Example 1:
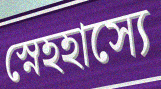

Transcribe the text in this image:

স্নেহহাস্যে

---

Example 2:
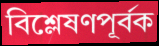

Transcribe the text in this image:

বিশ্লেষণপূর্বক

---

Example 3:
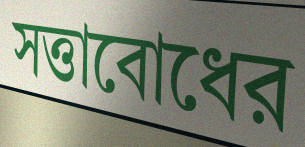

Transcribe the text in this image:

সত্তাবোধের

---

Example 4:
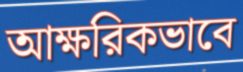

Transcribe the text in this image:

আক্ষরিকভাবে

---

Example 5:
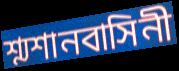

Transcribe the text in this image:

শ্মশানবাসিনী